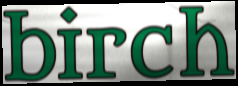
birch